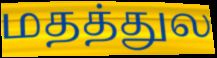
மதத்துல